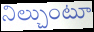
నిల్చుంటూ